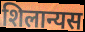
शिलान्यस